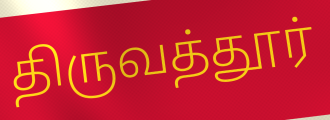
திருவத்தூர்